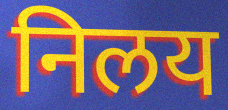
निलय